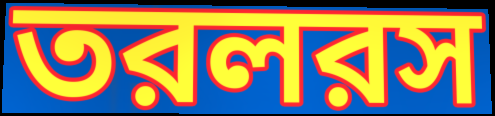
তরলরস